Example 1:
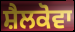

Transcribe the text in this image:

ਸ਼ੈਲਕੋਵਾ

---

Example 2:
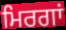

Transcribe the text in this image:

ਮਿਰਗਾਂ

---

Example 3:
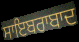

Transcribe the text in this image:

ਸਾਇਬਰਾਬਾਦ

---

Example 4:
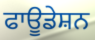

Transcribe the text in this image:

ਫਾਊਡੇਸ਼ਨ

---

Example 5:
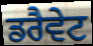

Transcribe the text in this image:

ਡਰੈਵੇਟ